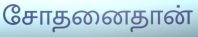
சோதனைதான்